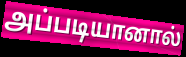
அப்படியானால்